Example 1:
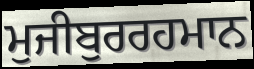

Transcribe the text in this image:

ਮੁਜੀਬੁਰਰਹਮਾਨ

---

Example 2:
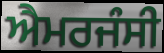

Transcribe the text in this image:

ਐਮਰਜੰਸੀ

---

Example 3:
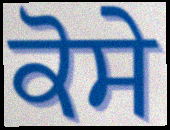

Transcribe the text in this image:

ਕੋਸੇ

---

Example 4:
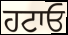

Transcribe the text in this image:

ਹਟਾਓ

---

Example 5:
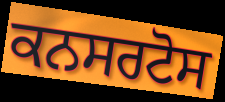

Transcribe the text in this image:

ਕਨਸਰਟੋਸ